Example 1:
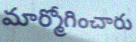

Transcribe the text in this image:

మార్మోగించారు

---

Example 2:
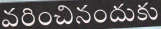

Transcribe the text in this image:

వరించినందుకు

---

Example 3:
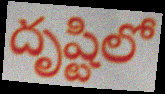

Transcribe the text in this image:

దృష్టిలో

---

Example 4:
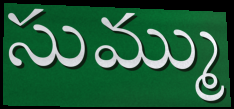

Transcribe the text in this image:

సుమ్ము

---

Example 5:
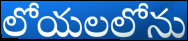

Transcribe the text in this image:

లోయలలోను